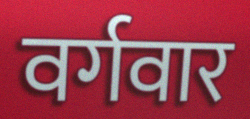
वर्गवार